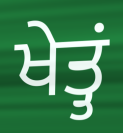
ਖੇਤ੍ਤਂ